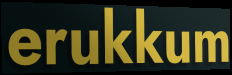
erukkum